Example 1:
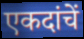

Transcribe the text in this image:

एकदांचें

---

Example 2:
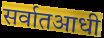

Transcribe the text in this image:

सर्वातआधी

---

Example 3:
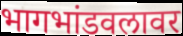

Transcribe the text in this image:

भागभांडवलावर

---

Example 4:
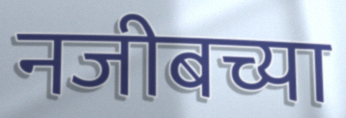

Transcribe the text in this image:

नजीबच्या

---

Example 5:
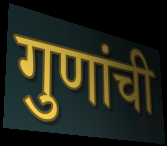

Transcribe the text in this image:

गुणांची